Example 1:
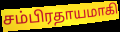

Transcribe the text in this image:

சம்பிரதாயமாகி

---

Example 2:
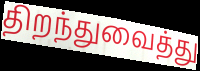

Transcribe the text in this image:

திறந்துவைத்து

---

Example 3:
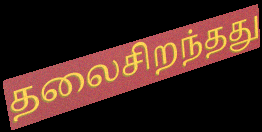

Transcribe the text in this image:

தலைசிறந்தது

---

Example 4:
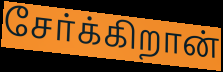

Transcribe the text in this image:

சேர்க்கிறான்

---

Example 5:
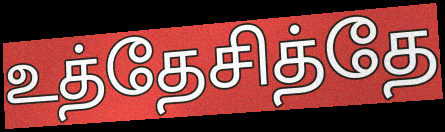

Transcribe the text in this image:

உத்தேசித்தே